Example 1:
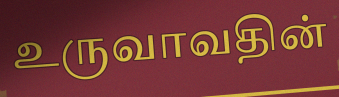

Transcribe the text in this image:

உருவாவதின்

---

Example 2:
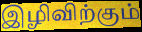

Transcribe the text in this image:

இழிவிற்கும்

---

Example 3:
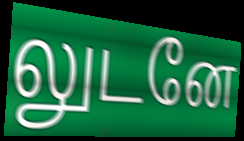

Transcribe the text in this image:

லுடனே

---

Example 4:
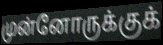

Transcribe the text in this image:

முன்னோருக்குக்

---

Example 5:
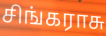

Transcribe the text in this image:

சிங்கராசு